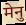
मेनु